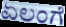
ಏಲಂಗೆ